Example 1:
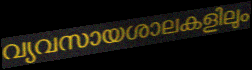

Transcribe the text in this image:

വ്യവസായശാലകളിലും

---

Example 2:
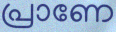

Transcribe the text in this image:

പ്രാണേ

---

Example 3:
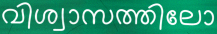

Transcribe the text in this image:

വിശ്വാസത്തിലോ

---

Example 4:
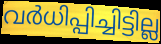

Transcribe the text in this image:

വർധിപ്പിച്ചിട്ടില്ല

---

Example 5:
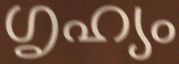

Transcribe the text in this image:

ഗൃഹ്യം